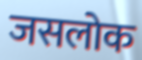
जसलोक